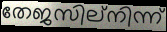
തേജസില്നിന്ന്